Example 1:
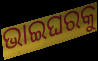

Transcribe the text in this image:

ଭାଇଘରକୁ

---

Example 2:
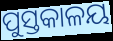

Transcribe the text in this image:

ପୁସ୍ତକାଳୟ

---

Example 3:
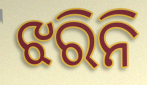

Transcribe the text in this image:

ଝରିନି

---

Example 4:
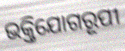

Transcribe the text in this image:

ଭକ୍ତିଯୋଗରୂପୀ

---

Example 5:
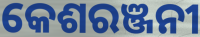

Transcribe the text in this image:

କେଶରଞ୍ଜନୀ